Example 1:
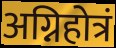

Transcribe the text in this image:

अग्निहोत्रं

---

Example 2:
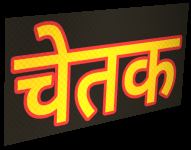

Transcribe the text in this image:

चेतक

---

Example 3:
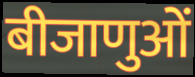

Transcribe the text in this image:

बीजाणुओं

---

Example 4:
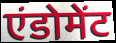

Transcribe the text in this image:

एंडोमेंट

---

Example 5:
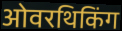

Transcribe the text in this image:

ओवरथिकिंग